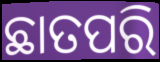
ଛାତପରି